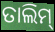
ତାଲିମ୍